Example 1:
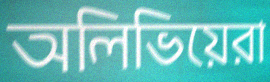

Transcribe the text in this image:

অলিভিয়েরা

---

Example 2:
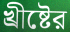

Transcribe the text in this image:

খ্রীষ্টের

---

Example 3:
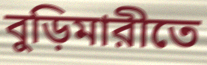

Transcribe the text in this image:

বুড়িমারীতে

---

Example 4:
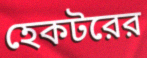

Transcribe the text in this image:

হেকটরের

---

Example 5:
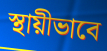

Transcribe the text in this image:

স্থায়ীভাবে